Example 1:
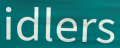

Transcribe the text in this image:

idlers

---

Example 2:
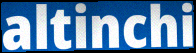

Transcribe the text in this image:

altinchi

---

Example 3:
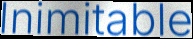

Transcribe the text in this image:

Inimitable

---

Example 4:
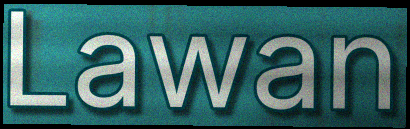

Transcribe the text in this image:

Lawan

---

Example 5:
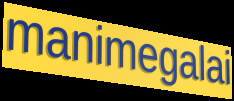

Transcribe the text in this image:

manimegalai